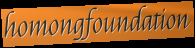
homongfoundation